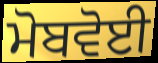
ਮੋਬਵੋਈ